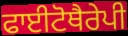
ਫਾਈਟੋਥੈਰੇਪੀ